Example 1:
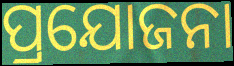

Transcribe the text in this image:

ପ୍ରଯୋଜନା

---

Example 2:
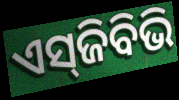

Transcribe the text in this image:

ଏସ୍‌ଜିବିଭି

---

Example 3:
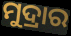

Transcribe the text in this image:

ମୁଦ୍ରାର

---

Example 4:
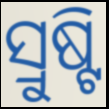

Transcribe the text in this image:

ସ୍ରୁଷ୍ଟି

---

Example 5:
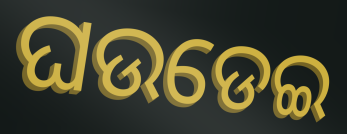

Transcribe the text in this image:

ଘଉଡେଇ